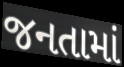
જનતામાં